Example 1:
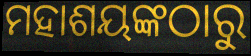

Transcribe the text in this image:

ମହାଶୟଙ୍କଠାରୁ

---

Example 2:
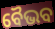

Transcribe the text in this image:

ବୈଭବ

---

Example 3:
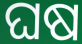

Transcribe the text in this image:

ଘଷ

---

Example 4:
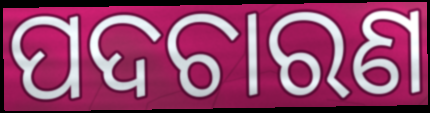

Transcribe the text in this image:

ପଦଚାରଣ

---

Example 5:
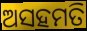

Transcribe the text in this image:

ଅସହମତି